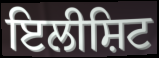
ਇਲੀਸ਼ਿਟ